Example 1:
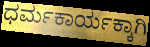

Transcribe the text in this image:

ಧರ್ಮಕಾರ್ಯಕ್ಕಾಗಿ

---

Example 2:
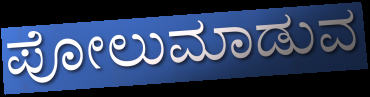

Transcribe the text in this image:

ಪೋಲುಮಾಡುವ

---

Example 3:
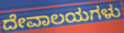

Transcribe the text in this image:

ದೇವಾಲಯಗಳು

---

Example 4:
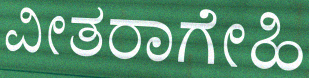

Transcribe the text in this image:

ವೀತರಾಗೇಹಿ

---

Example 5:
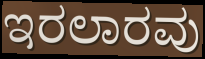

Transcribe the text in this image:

ಇರಲಾರವು